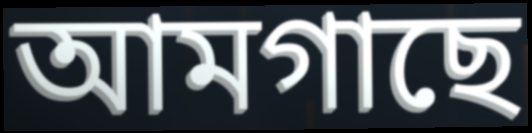
আমগাছে